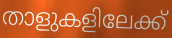
താളുകളിലേക്ക്